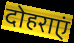
दोहराएं